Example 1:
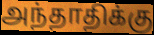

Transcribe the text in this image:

அந்தாதிக்கு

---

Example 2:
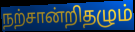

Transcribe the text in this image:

நற்சான்றிதழும்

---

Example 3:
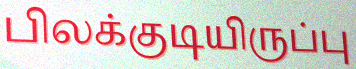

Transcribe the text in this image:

பிலக்குடியிருப்பு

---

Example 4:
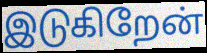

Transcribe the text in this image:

இடுகிறேன்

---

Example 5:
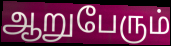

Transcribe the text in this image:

ஆறுபேரும்